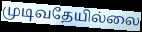
முடிவதேயில்லை